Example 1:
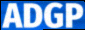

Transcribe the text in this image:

ADGP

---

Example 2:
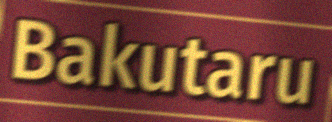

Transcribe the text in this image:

Bakutaru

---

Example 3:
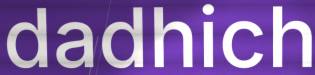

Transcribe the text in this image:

dadhich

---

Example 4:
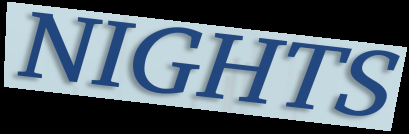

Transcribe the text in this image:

NIGHTS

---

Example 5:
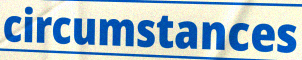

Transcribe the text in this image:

circumstances